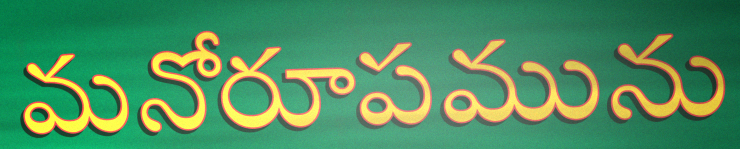
మనోరూపమును